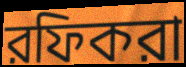
রফিকরা